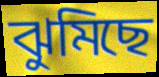
ঝুমিছে